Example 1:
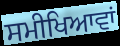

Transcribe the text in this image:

ਸਮੀਖਿਆਵਾਂ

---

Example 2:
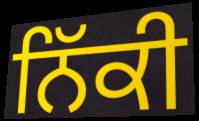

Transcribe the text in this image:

ਨਿੱਕੀ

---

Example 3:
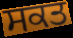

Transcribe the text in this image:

ਸਕਤ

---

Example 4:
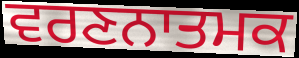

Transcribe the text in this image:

ਵਰਣਨਾਤਮਕ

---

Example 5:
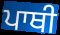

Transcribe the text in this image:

ਪਾਥੀ